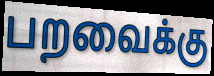
பறவைக்கு